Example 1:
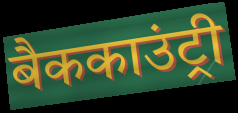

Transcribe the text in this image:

बैककाउंट्री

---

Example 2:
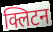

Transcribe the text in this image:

क्लिटन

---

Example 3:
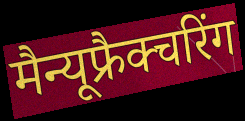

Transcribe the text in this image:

मैन्यूफ्रैक्चरिंग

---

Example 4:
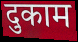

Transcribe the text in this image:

दुकाम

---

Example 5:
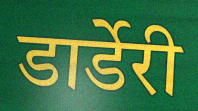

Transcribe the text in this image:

डार्डेरी